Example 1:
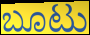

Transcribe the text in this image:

ಬೂಟು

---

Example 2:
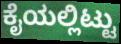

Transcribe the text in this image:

ಕೈಯಲ್ಲಿಟ್ಟು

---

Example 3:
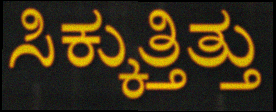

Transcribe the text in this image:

ಸಿಕ್ಕುತ್ತಿತ್ತು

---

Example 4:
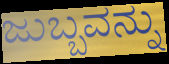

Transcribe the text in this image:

ಜುಬ್ಬವನ್ನು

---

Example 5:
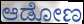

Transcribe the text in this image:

ಆಡೋಣ